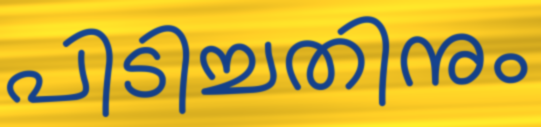
പിടിച്ചതിനും